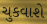
ચુકવાશે